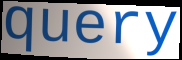
query